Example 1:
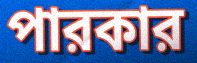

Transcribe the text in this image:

পারকার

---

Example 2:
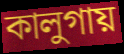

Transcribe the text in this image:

কালুগায়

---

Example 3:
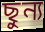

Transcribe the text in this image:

ছুন্য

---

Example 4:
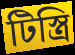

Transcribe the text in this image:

টিস্ত্রি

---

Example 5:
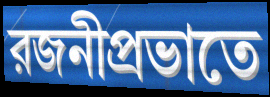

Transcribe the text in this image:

রজনীপ্রভাতে